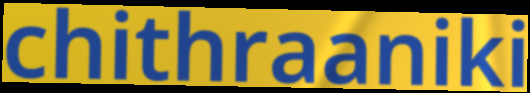
chithraaniki